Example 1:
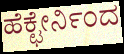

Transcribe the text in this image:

ಹೆಕ್ಟೇರ್ನಿಂದ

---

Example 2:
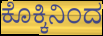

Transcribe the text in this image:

ಕೊಕ್ಕಿನಿಂದ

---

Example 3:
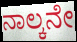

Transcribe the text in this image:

ನಾಲ್ಕನೇ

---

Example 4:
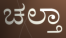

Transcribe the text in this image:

ಚಲ್ತಾ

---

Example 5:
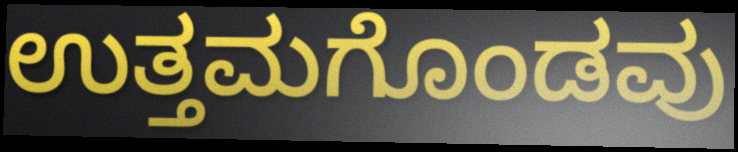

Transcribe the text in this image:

ಉತ್ತಮಗೊಂಡವು